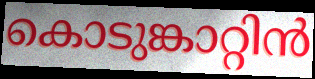
കൊടുങ്കാറ്റിൻ